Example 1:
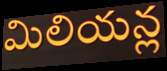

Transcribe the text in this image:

మిలియన్ల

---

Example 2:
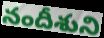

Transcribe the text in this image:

నందీశుని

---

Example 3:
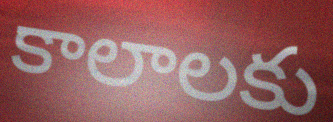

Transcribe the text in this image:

కాలాలకు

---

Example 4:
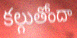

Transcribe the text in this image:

కల్గుతోందా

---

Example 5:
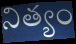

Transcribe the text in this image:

నిత్యం